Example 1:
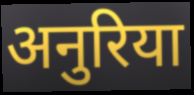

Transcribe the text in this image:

अनुरिया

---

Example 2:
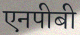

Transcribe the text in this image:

एनपीबी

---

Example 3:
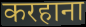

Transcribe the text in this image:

करहाना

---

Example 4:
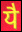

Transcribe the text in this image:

यै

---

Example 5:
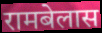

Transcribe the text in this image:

रामबेलास